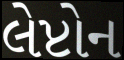
લેપ્ટોન